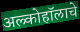
अल्कोहॉलाचे